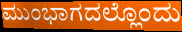
ಮುಂಭಾಗದಲ್ಲೊಂದು